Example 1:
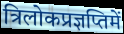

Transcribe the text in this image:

त्रिलोकप्रज्ञप्तिमें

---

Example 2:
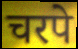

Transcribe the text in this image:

चरपे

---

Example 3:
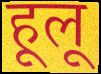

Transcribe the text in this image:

हूलू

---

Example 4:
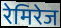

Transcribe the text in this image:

रेमिरेज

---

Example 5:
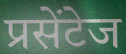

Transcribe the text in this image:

प्रसेंटेज